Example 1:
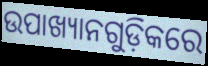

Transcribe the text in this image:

ଉପାଖ୍ୟାନଗୁଡ଼ିକରେ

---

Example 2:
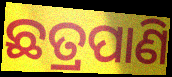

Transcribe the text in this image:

ଛତ୍ରପାଣି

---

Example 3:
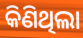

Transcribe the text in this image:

କିଣିଥିଲା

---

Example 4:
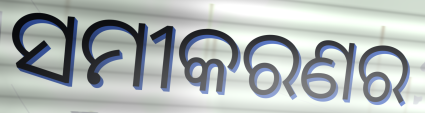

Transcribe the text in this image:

ସମୀକରଣର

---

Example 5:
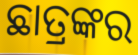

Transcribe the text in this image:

ଛାତ୍ରଙ୍କର